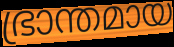
ഭ്രാന്തമായ